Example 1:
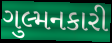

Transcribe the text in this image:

ગુલ્મનકારી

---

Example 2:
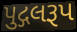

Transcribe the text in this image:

પુદ્ગલરૂપ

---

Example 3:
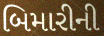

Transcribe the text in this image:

બિમારીની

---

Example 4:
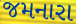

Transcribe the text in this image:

જમનારા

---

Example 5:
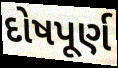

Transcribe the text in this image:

દોષપૂર્ણ